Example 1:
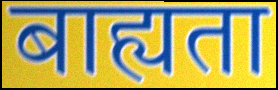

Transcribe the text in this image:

बाह्यता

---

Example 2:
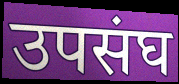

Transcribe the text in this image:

उपसंघ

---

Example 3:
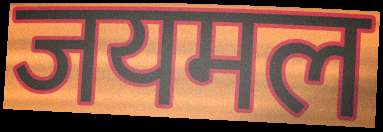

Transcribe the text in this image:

जयमल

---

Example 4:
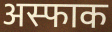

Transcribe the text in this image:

अस्फाक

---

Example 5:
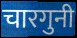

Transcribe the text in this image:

चारगुनी